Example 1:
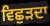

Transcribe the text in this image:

ਵਿਛੁੜਦਾ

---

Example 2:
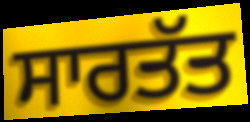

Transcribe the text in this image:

ਸਾਰਤੱਤ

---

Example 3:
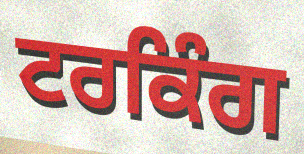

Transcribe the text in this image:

ਟਰਕਿੰਗ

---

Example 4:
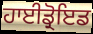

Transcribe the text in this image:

ਹਾਈਡ੍ਰੋਇਡ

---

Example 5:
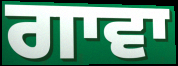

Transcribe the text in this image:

ਗਾਵਾ